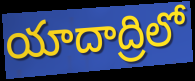
యాదాద్రిలో